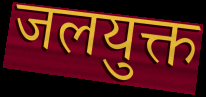
जलयुक्त